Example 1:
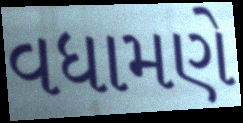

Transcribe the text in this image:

વધામણે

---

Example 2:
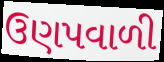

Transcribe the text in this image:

ઉણપવાળી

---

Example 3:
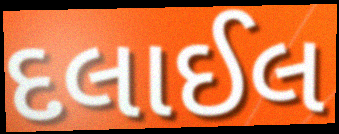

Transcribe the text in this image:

દલાઈલ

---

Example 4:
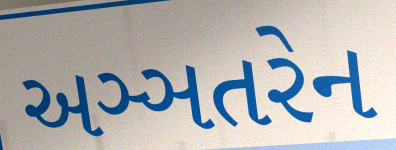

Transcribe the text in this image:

અઞ્ઞતરેન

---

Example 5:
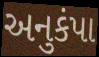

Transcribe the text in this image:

અનુકંપા